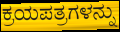
ಕ್ರಯಪತ್ರಗಳನ್ನು